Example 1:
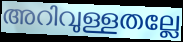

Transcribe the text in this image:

അറിവുള്ളതല്ലേ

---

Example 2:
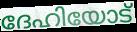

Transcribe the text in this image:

ദേഹിയോട്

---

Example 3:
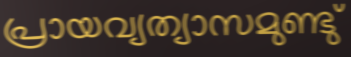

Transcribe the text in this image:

പ്രായവ്യത്യാസമുണ്ടു്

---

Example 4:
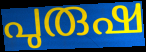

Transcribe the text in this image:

പുരുഷ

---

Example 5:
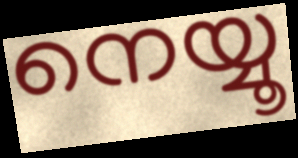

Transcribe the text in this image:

നെയ്യൂ